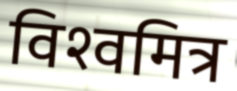
विश्वमित्र